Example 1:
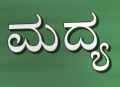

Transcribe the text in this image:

ಮದ್ಯ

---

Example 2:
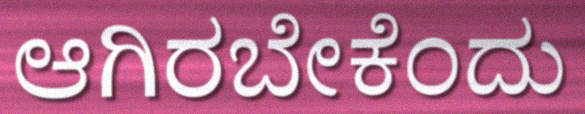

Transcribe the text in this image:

ಆಗಿರಬೇಕೆಂದು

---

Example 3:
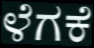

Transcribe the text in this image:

ಳೆಗಕೆ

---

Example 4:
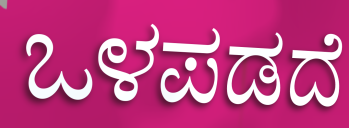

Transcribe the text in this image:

ಒಳಪಡದೆ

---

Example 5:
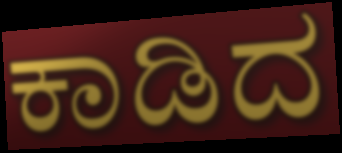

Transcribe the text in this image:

ಕಾಡಿದ